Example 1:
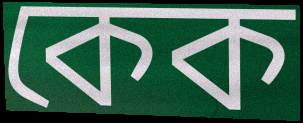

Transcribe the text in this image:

কেক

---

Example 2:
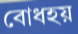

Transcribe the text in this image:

বোধহয়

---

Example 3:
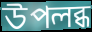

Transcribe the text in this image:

উপলব্ধ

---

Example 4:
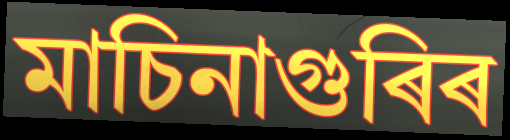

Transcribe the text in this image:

মাচিনাগুৰিৰ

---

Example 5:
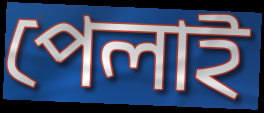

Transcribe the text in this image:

পেলাই